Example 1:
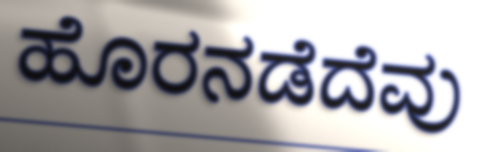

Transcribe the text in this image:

ಹೊರನಡೆದೆವು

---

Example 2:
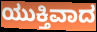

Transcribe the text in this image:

ಯುಕ್ತಿವಾದ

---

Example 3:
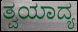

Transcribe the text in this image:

ತ್ವಯಾದ್ಯ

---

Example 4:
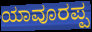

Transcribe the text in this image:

ಯಾವೂರಪ್ಪ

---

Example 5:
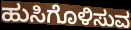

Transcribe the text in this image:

ಹುಸಿಗೊಳಿಸುವ